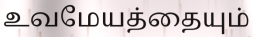
உவமேயத்தையும்